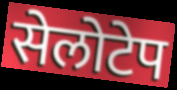
सेलोटेप